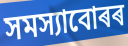
সমস্যাবোৰৰ